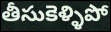
తీసుకెళ్ళిపో